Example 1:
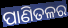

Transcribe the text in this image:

ପାଣିତଳର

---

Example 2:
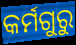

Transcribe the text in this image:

କର୍ମଗୁରୁ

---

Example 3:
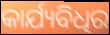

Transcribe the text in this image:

କାର୍ଯ୍ୟବିଧିର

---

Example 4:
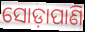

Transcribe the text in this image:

ସୋଡ଼ାପାଣି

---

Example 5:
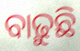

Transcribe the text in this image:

ବାଢ଼ୁଛି